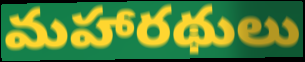
మహారథులు